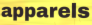
apparels